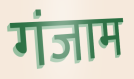
गंजाम